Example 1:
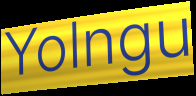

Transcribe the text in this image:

Yolngu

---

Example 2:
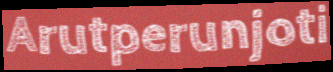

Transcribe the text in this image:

Arutperunjoti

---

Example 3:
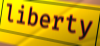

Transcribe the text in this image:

liberty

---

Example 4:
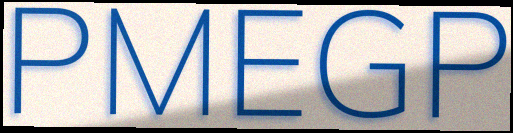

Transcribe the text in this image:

PMEGP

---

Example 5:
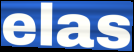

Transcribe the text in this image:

elas